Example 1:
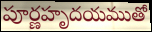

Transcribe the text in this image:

పూర్ణహృదయముతో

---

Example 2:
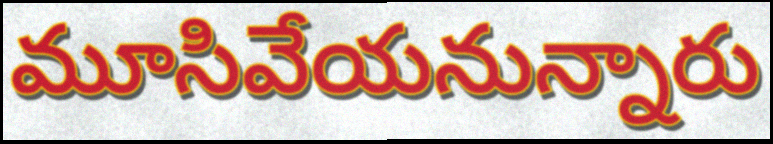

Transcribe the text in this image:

మూసివేయనున్నారు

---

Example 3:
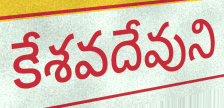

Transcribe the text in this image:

కేశవదేవుని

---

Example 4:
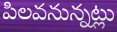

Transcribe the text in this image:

పిలవనున్నట్లు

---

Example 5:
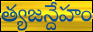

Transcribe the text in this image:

త్యజన్దేహం